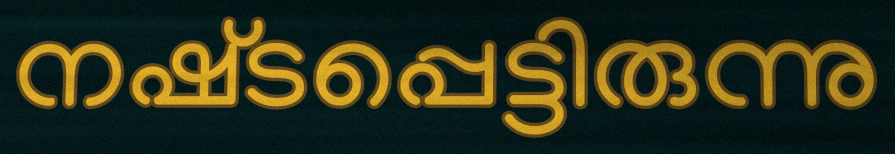
നഷ്‌ടപ്പെട്ടിരുന്നു